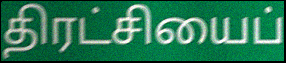
திரட்சியைப்